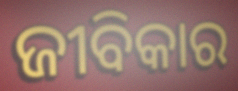
ଜୀବିକାର